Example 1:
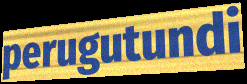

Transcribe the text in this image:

perugutundi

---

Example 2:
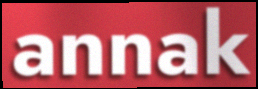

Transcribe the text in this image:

annak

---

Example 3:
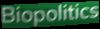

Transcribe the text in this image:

Biopolitics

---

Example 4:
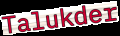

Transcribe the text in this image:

Talukder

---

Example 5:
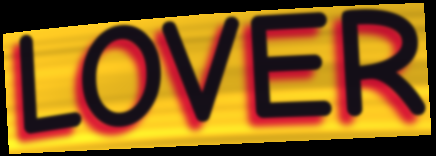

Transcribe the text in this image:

LOVER